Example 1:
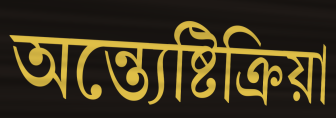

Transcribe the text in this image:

অন্ত্যেষ্টিক্রিয়া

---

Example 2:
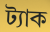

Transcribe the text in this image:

ট্যাক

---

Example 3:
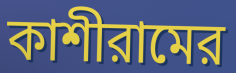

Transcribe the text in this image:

কাশীরামের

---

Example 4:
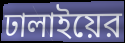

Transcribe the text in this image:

ঢালাইয়ের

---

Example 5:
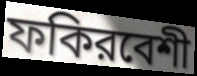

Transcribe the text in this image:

ফকিরবেশী